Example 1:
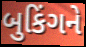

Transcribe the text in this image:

બુકિંગને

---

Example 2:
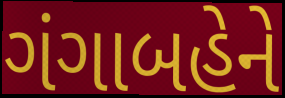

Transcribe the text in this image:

ગંગાબહેને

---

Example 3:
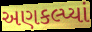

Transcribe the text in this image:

અણકલ્પ્યાં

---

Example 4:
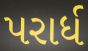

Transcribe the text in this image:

પરાર્ધ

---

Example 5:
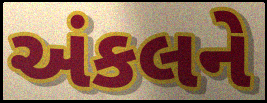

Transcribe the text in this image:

અંકલને